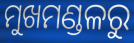
ମୁଖମଣ୍ଡଳରୁ